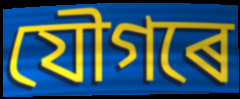
যৌগৰে